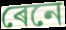
ৰেনে